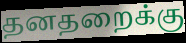
தனதறைக்கு